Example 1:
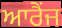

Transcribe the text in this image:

ਆਰੈਂਜ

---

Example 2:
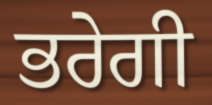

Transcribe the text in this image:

ਭਰੇਗੀ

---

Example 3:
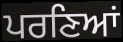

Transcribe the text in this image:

ਪਰਣਿਆਂ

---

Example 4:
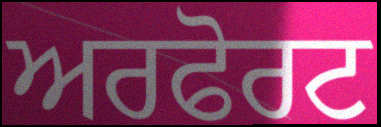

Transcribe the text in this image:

ਅਰਫੋਰਟ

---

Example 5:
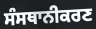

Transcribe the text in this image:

ਸੰਸਥਾਨੀਕਰਣ